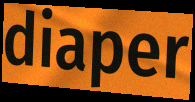
diaper